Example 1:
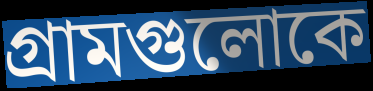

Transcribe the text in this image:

গ্রামগুলোকে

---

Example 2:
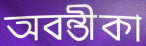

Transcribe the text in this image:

অবন্তীকা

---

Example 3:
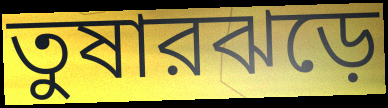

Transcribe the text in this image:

তুষারঝড়ে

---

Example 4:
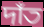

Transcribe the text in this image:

দাঁত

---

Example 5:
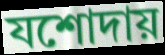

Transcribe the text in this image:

যশোদায়